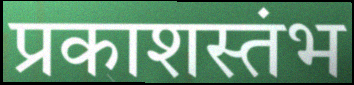
प्रकाशस्तंभ